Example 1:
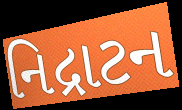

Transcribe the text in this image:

નિદ્રાટન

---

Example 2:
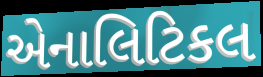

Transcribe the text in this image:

એનાલિટિકલ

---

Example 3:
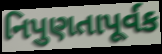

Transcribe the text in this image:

નિપુણતાપૂર્વક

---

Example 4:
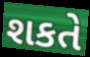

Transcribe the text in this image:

શકતે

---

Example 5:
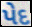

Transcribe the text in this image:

પેદ